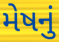
મેષનું